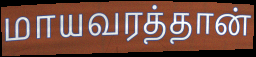
மாயவரத்தான்